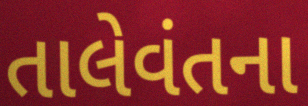
તાલેવંતના